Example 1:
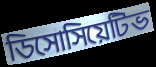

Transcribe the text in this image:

ডিসোসিয়েটিভ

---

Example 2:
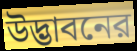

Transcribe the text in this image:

উদ্ভাবনের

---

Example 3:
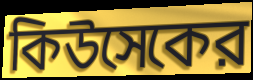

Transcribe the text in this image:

কিউসেকের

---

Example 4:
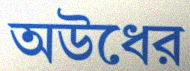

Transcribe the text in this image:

অউধের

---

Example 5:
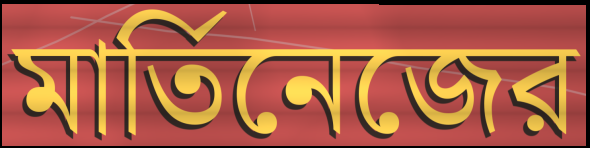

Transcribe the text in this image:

মার্তিনেজের